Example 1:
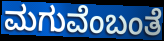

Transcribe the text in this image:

ಮಗುವೆಂಬಂತೆ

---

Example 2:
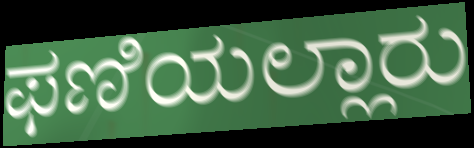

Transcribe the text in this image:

ಫಣಿಯಲ್ಲಾರು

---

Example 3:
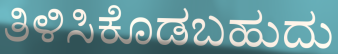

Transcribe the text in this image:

ತಿಳಿಸಿಕೊಡಬಹುದು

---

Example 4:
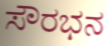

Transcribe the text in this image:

ಸೌರಭನ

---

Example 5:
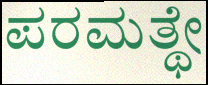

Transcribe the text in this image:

ಪರಮತ್ಥೇ